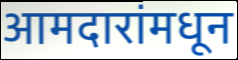
आमदारांमधून